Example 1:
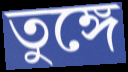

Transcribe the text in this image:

তুঙ্গে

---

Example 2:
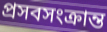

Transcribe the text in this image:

প্রসবসংক্রান্ত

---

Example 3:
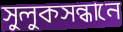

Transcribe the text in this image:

সুলুকসন্ধানে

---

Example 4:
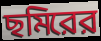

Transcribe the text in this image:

ছমিরের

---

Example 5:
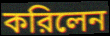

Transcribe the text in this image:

করিলেন